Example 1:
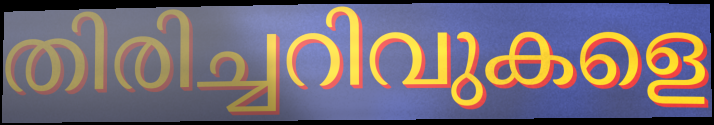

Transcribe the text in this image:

തിരിച്ചറിവുകളെ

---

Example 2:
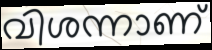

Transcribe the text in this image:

വിശന്നാണ്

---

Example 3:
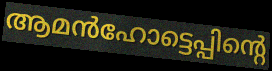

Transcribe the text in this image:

ആമൻഹോട്ടെപ്പിന്റെ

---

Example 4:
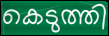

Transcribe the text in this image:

കെടുത്തി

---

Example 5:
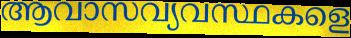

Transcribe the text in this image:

ആവാസവ്യവസ്ഥകളെ